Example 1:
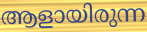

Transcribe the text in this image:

ആളായിരുന്ന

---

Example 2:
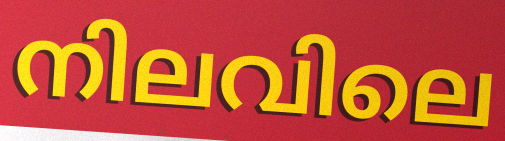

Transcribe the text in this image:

നിലവിലെ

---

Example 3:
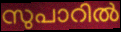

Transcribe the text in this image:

സുപാറിൽ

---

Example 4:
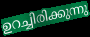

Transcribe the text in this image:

ഉറച്ചിരിക്കുന്നു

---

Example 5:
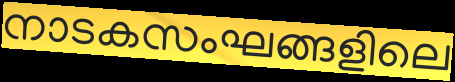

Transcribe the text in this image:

നാടകസംഘങ്ങളിലെ